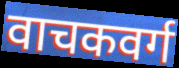
वाचकवर्ग